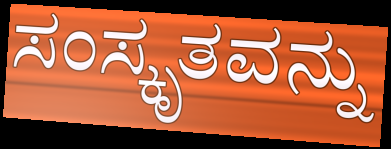
ಸಂಸ್ಕೃತವನ್ನು